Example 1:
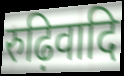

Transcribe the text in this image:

रुढ़िवादि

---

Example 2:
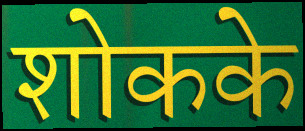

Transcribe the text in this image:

शोकके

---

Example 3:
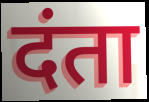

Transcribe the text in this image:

दंता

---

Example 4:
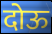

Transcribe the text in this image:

दोऊ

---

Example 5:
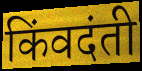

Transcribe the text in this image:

किंवदंती